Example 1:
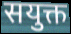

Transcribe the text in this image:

सयुक्त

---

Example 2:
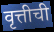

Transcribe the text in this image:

वृत्तीची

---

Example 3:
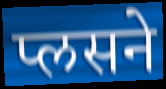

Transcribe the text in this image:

प्लसने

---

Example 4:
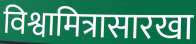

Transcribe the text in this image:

विश्वामित्रासारखा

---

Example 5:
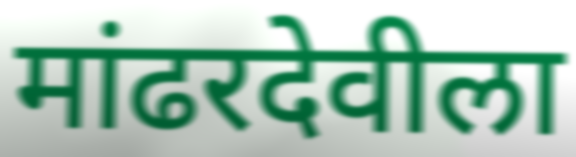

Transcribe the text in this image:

मांढरदेवीला